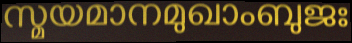
സ്മയമാനമുഖാംബുജഃ